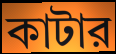
কাটার